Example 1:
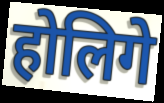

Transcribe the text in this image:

होलिगे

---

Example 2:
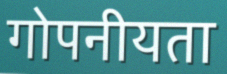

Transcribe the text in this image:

गोपनीयता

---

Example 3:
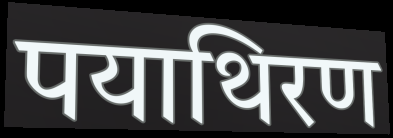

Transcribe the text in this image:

पयाथिरण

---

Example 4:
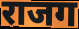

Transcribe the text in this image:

राजग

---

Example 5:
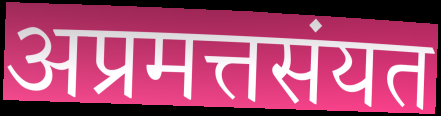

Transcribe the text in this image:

अप्रमत्तसंयत